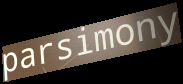
parsimony